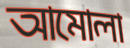
আমোলা